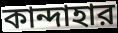
কান্দাহার